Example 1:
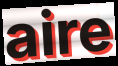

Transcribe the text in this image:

aire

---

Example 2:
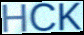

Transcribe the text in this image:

HCK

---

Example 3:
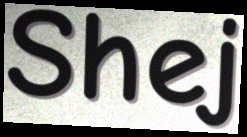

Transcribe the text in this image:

Shej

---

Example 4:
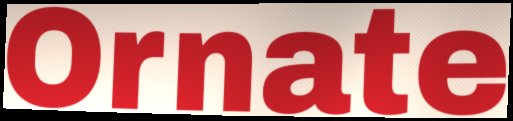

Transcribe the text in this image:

Ornate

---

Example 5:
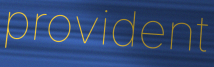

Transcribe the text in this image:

provident